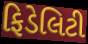
ફિડેલિટી